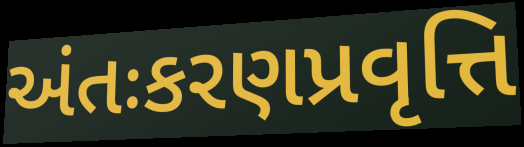
અંતઃકરણપ્રવૃત્તિ